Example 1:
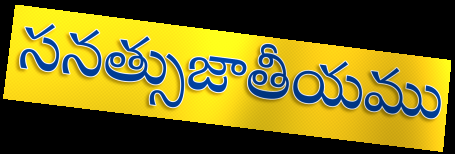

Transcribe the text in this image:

సనత్సుజాతీయము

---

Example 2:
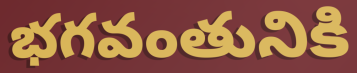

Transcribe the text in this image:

భగవంతునికి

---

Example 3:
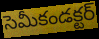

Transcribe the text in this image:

సెమీకండక్టర్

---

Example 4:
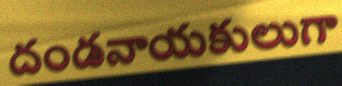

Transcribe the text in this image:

దండనాయకులుగా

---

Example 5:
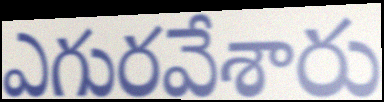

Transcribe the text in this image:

ఎగురవేశారు